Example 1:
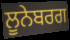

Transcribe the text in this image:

ਲੂਨੇਬਰਗ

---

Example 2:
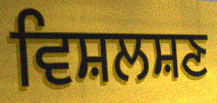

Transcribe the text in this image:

ਵਿਸ਼ਲਸ਼ਣ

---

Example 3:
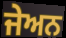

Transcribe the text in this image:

ਜੇਅਨ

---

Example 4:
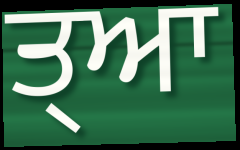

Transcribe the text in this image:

ਤ੍ਆ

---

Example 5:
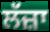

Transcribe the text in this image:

ਲੱਜ਼ਾ